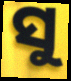
ସୁ